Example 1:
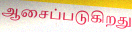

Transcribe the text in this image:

ஆசைப்படுகிறது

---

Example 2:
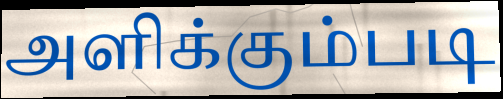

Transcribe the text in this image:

அளிக்கும்படி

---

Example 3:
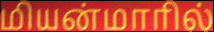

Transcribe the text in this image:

மியன்மாரில்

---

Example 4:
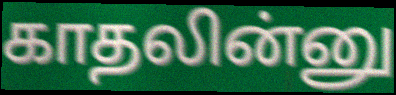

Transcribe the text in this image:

காதலின்னு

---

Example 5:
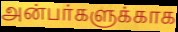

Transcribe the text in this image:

அன்பர்களுக்காக